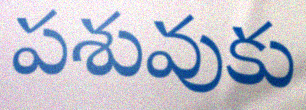
పశువుకు